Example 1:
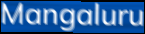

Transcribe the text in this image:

Mangaluru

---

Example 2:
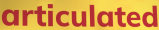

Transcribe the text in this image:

articulated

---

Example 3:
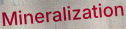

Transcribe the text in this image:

Mineralization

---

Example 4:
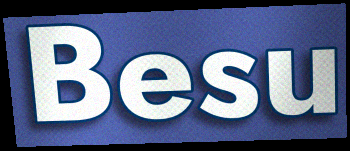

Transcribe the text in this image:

Besu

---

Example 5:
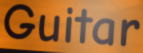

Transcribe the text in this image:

Guitar